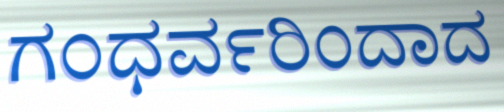
ಗಂಧರ್ವರಿಂದಾದ